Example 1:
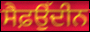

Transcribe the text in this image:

ਸੈਫ਼ਉੱਦੀਨ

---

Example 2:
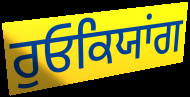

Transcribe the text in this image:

ਰੁਓਕਿਯਾਂਗ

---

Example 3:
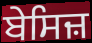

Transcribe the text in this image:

ਬੇਸਿਜ਼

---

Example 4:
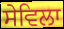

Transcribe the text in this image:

ਸੇਵਿਲਾ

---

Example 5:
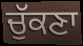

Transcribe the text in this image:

ਚੁੱਕਣਾ